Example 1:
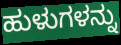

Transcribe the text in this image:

ಹುಳುಗಳನ್ನು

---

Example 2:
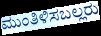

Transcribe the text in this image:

ಮುಂತಿಳಿಸಬಲ್ಲರು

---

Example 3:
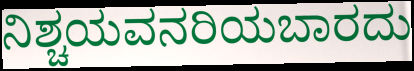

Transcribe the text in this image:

ನಿಶ್ಚಯವನರಿಯಬಾರದು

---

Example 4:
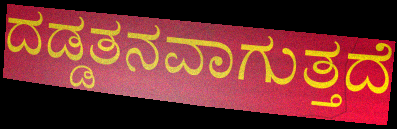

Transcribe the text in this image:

ದಡ್ಡತನವಾಗುತ್ತದೆ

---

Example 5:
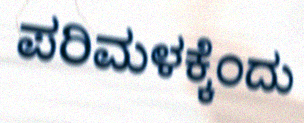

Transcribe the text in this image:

ಪರಿಮಳಕ್ಕೆಂದು